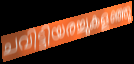
ചവിട്ടിയരച്ചുകളഞ്ഞു